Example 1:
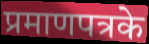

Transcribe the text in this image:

प्रमाणपत्रके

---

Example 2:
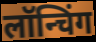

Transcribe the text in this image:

लॉन्चिंग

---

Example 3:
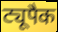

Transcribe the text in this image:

ट्यूपैक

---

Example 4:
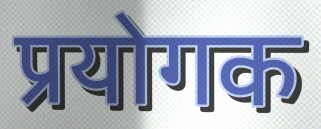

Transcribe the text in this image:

प्रयोगक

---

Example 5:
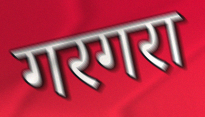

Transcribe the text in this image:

गरगरा